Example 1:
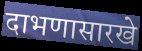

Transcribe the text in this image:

दाभणासारखे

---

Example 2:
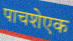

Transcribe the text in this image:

पाचशेएक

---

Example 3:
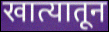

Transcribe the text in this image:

खात्यातून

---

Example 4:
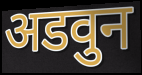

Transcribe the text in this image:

अडवुन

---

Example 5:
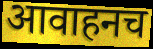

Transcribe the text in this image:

आवाहनच